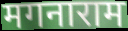
मगनाराम